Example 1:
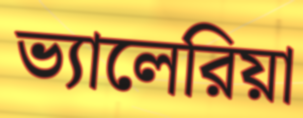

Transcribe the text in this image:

ভ্যালেরিয়া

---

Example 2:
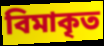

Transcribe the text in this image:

বিমাকৃত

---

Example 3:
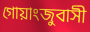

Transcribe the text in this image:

গোয়াংজুবাসী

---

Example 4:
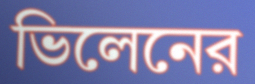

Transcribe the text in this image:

ভিলেনের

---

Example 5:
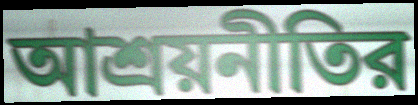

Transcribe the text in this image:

আশ্রয়নীতির